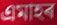
এমাহৰ